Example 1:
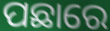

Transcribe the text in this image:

ପଛାରେ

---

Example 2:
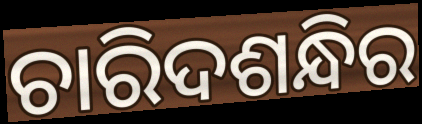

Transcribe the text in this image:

ଚାରିଦଶନ୍ଧିର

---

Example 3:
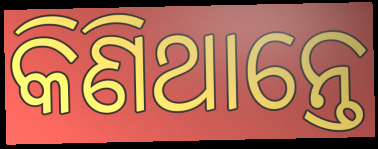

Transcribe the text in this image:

କିଣିଥାନ୍ତେ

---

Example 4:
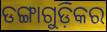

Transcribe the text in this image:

ଡଙ୍ଗାଗୁଡ଼ିକର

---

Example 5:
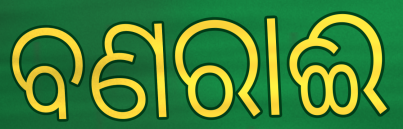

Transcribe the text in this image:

ବଣରାଈ